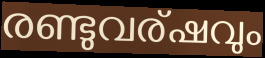
രണ്ടുവര്ഷവും